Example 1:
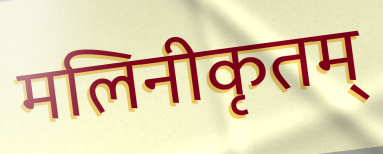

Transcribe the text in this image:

मलिनीकृतम्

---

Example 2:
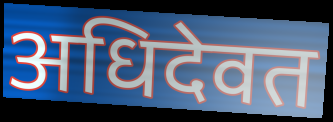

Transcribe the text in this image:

अधिदेवत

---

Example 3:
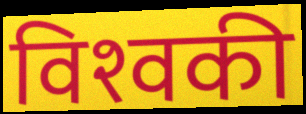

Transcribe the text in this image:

विश्वकी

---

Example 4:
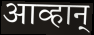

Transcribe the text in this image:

आव्हान्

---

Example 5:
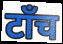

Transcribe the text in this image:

टाँच